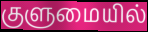
குளுமையில்